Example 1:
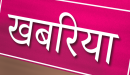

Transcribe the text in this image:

खबरिया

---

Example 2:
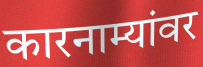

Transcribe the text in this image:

कारनाम्यांवर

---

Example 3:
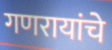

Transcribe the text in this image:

गणरायांचे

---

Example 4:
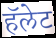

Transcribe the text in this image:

हॅलेट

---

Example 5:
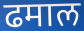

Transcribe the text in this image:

ढमाल